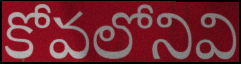
కోవలోనివి